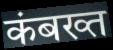
कंबख्त